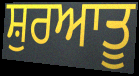
ਸ਼ੁਰਆਤੂ